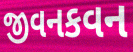
જીવનકવન